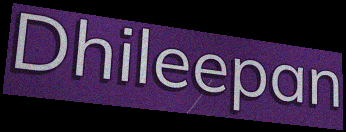
Dhileepan